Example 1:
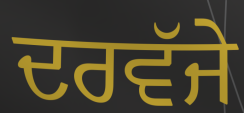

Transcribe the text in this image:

ਦਰਵੱਜੇ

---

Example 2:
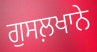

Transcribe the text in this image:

ਗੁਸਲ਼ਖਾਨੇ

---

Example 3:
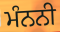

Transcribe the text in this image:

ਮੰਨਨੀ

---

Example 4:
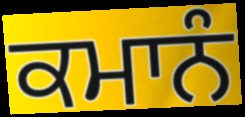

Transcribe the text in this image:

ਕਮਾਨੰ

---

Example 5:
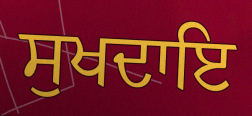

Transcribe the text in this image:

ਸੁਖਦਾਇ